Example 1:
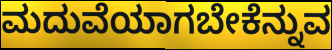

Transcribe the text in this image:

ಮದುವೆಯಾಗಬೇಕೆನ್ನುವ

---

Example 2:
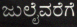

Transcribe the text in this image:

ಜುಲೈವರೆಗೆ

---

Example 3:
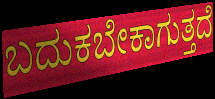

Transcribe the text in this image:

ಬದುಕಬೇಕಾಗುತ್ತದೆ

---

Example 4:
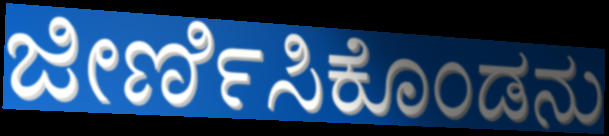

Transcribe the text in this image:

ಜೀರ್ಣಿಸಿಕೊಂಡನು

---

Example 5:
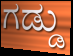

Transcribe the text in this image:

ಗಡ್ಡು